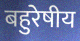
बहुरेषीय